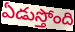
ఏడుస్తోంది